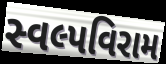
સ્વલ્પવિરામ